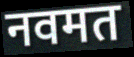
नवमत